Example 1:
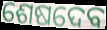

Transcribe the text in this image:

ଶେଷଦେବ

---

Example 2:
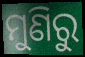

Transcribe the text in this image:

ମୁଣିରୁ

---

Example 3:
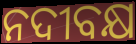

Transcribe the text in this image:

ନଦୀବକ୍ଷ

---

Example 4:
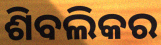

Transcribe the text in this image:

ଶିବଲିକର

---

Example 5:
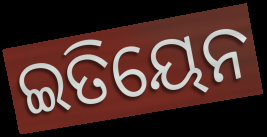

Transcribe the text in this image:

ଇତିୟେନ